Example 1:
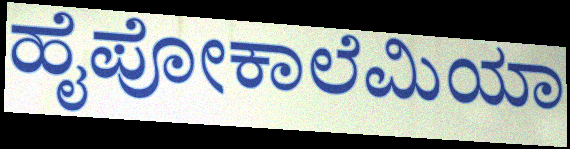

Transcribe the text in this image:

ಹೈಪೋಕಾಲೆಮಿಯಾ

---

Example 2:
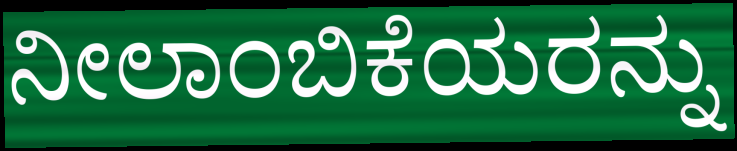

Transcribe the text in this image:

ನೀಲಾಂಬಿಕೆಯರನ್ನು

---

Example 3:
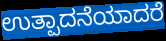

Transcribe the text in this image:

ಉತ್ಪಾದನೆಯಾದರೆ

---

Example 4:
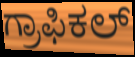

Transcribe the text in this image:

ಗ್ರಾಫಿಕಲ್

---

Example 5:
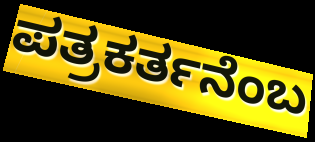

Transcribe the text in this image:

ಪತ್ರಕರ್ತನೆಂಬ